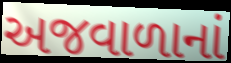
અજવાળાનાં